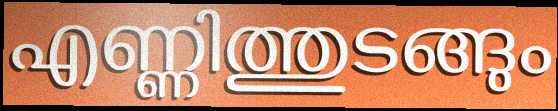
എണ്ണിത്തുടങ്ങും